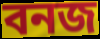
বনজ